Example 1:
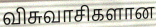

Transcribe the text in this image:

விசுவாசிகளான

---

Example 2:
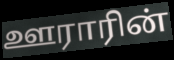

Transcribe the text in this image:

ஊராரின்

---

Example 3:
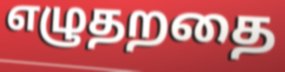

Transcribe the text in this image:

எழுதறதை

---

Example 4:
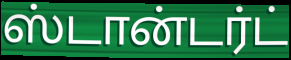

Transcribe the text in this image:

ஸ்டான்டர்ட்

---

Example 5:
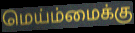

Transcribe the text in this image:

மெய்ம்மைக்கு